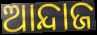
ଆନ୍ଦାଜ